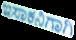
ಇಸಾಕನಿಗಾಗಿ